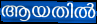
ആയതിൽ